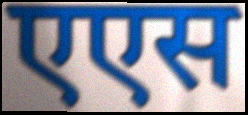
एएस